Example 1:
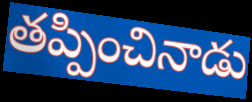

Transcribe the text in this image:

తప్పించినాడు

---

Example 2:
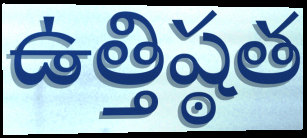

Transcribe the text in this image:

ఉత్తిష్ఠత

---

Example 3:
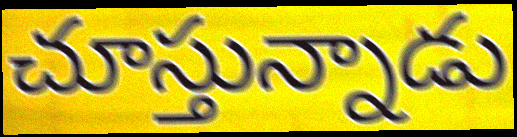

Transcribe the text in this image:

చూస్తున్నాడు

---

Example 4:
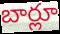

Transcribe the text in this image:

బార్లూ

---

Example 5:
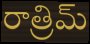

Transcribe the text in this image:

రాత్రిమ్